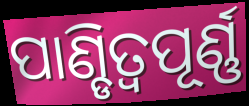
ପାଣ୍ଡିତ୍ୱପୂର୍ଣ୍ଣ